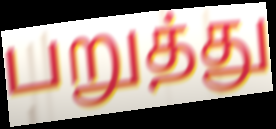
பறுத்து